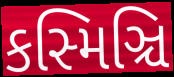
કસ્મિઞ્ચિ